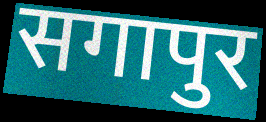
सगापुर